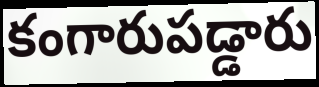
కంగారుపడ్డారు